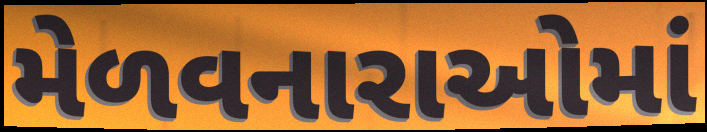
મેળવનારાઓમાં